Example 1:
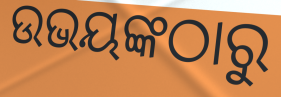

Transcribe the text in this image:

ଉଭୟଙ୍କଠାରୁ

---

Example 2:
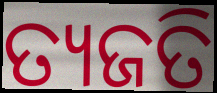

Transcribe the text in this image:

ତ୍ୟଜତି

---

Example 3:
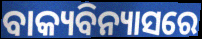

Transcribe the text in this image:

ବାକ୍ୟବିନ୍ୟାସରେ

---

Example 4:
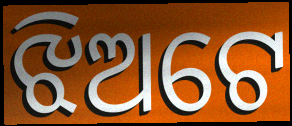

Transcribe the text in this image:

ଝିଅଟେ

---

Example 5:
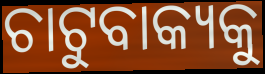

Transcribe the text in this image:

ଚାଟୁବାକ୍ୟକୁ